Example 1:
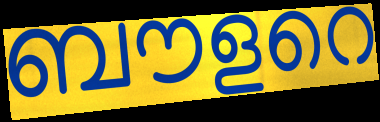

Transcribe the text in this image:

ബൗളറെ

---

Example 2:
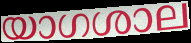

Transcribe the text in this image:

യാഗശാല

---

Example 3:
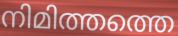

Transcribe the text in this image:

നിമിത്തത്തെ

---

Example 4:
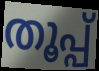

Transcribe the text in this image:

തൂപ്പ്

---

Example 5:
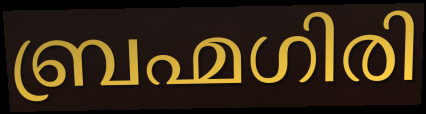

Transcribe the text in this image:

ബ്രഹ്മഗിരി